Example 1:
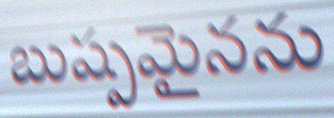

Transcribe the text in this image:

బుష్పమైనను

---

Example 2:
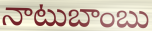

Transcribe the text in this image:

నాటుబాంబు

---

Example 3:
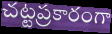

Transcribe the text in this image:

చట్టప్రకారంగా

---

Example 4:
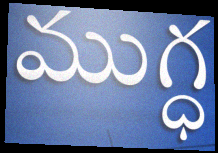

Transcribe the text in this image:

ముగ్ధ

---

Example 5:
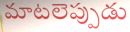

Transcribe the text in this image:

మాటలెప్పుడు